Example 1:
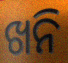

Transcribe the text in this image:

ଖନି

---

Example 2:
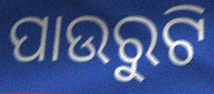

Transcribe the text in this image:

ପାଉରୁଟି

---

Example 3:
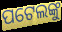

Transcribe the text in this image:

ପଟେଲଙ୍କୁ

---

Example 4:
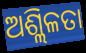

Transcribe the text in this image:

ଅଶ୍ଲିଳତା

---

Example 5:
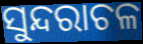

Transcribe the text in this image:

ସୁନ୍ଦରାଚଳ